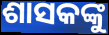
ଶାସକଙ୍କୁ